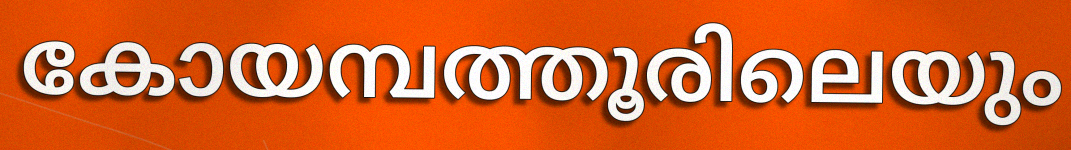
കോയമ്പത്തൂരിലെയും